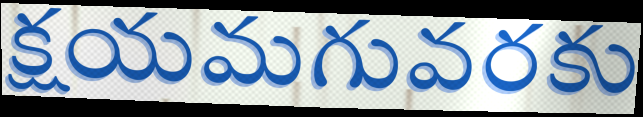
క్షయమగువరకు